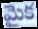
మైక